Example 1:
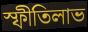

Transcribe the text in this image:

স্ফীতিলাভ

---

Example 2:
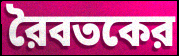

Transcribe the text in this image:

রৈবতকের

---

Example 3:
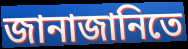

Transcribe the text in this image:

জানাজানিতে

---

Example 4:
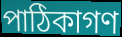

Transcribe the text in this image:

পাঠিকাগণ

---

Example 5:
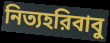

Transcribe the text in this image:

নিত্যহরিবাবু